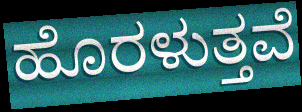
ಹೊರಳುತ್ತವೆ